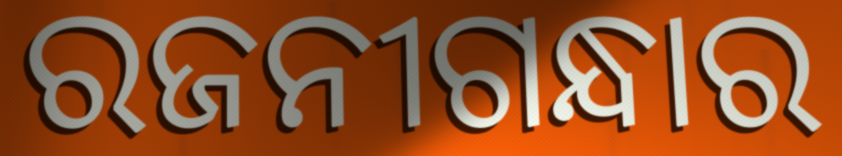
ରଜନୀଗନ୍ଧାର